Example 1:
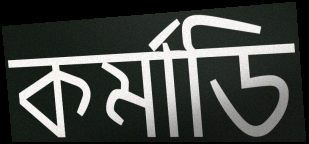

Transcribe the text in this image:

কর্মাডি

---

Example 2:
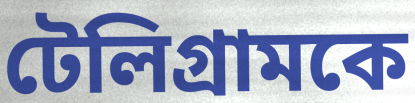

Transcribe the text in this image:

টেলিগ্রামকে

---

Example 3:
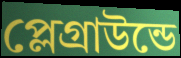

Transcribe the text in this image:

প্লেগ্রাউন্ডে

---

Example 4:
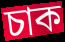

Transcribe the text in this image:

চাক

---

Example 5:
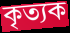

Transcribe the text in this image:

কৃত্যক